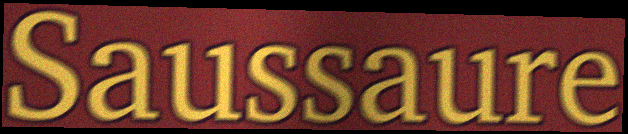
Saussaure